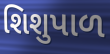
શિશુપાળ